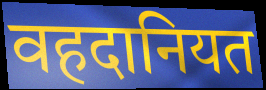
वहदानियत